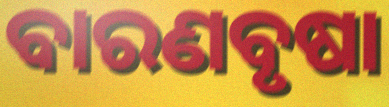
ବାରଣବୃଷା